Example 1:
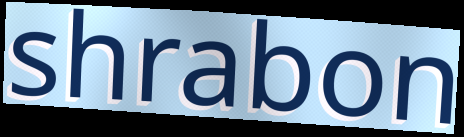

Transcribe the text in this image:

shrabon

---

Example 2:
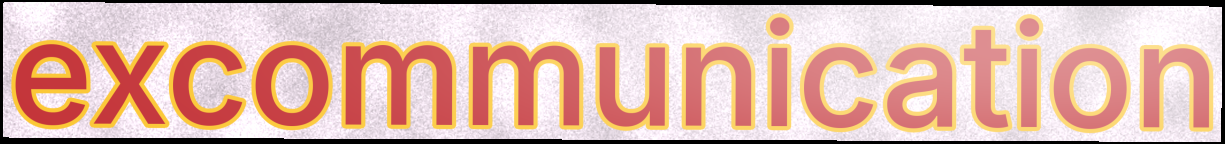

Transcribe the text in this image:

excommunication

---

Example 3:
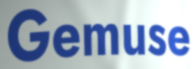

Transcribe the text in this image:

Gemuse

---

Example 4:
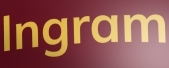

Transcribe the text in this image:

Ingram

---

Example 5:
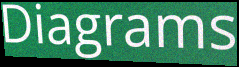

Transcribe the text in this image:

Diagrams